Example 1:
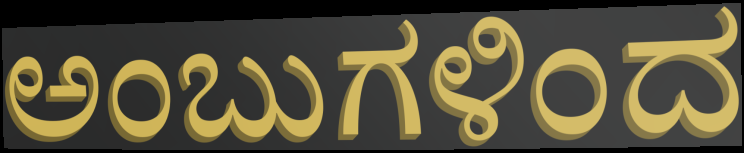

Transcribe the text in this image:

ಅಂಬುಗಳಿಂದ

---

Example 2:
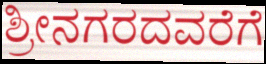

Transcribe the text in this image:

ಶ್ರೀನಗರದವರೆಗೆ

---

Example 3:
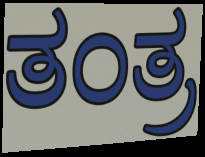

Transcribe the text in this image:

ತಂತ್ರ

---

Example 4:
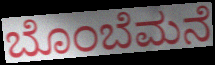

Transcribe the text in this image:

ಬೊಂಬೆಮನೆ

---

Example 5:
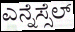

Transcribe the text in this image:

ಎನ್ನೆಸ್ಸೆಲ್